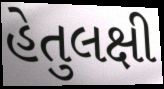
હેતુલક્ષી